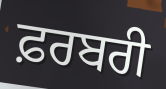
ਫ਼ਰਬਰੀ